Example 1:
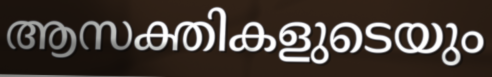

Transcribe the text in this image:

ആസക്തികളുടെയും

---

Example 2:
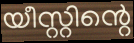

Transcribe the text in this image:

യീസ്റ്റിന്റെ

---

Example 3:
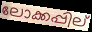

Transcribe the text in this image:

ലോക്കപ്പില്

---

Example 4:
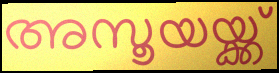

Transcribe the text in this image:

അസൂയയ്ക്ക്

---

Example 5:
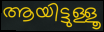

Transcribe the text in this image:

ആയിട്ടുള്ളൂ